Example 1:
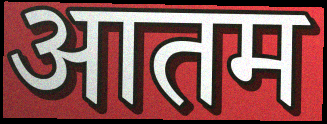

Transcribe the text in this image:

आतम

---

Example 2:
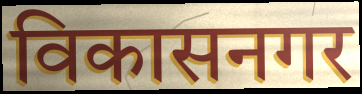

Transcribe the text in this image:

विकासनगर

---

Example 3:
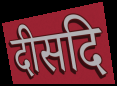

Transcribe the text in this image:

दीसदि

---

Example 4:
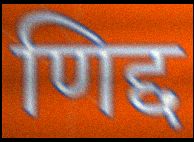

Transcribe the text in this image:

णिद्द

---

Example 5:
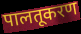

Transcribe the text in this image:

पालतूकरण